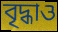
বৃদ্ধাও